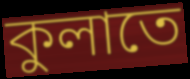
কুলাতে